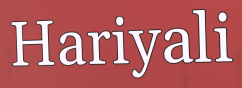
Hariyali